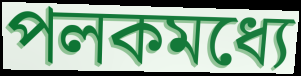
পলকমধ্যে